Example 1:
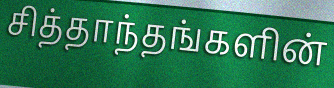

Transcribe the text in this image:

சித்தாந்தங்களின்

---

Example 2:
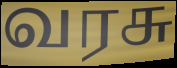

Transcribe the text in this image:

வரசு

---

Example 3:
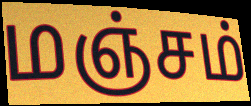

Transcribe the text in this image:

மஞ்சம்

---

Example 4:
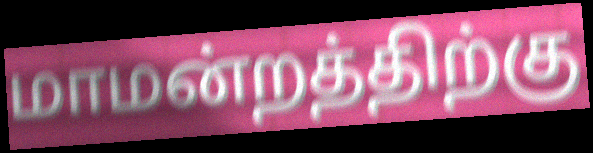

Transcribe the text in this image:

மாமன்றத்திற்கு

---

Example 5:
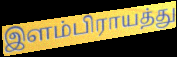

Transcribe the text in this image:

இளம்பிராயத்து